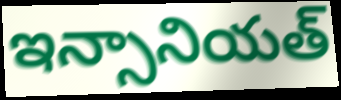
ఇన్సానియత్